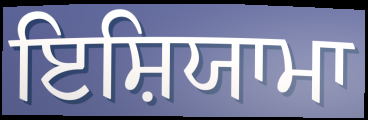
ਇਸ਼ਿਯਾਮਾ